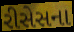
રીસેસના